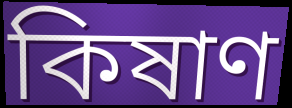
কিষাণ